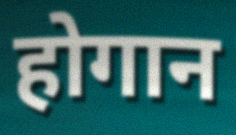
होगान